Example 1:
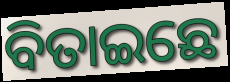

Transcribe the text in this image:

ବିତାଇଛେ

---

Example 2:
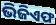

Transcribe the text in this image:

ଭିଜିଏଫ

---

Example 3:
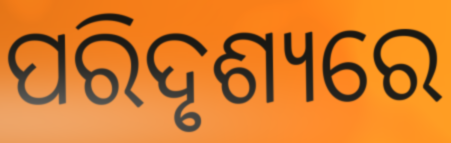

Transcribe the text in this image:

ପରିଦୃଶ୍ୟରେ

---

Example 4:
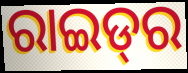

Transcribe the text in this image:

ରାଇଡ୍‌ର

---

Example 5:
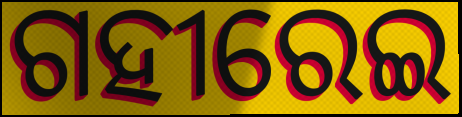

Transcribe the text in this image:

ଗହୀରେଇ